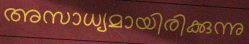
അസാധ്യമായിരിക്കുന്നു